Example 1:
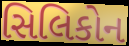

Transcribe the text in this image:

સિલિકોન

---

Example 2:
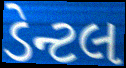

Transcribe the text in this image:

ડેન્ટલ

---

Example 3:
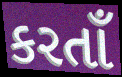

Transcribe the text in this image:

કરતાઁ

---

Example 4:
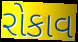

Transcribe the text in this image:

રોકાવ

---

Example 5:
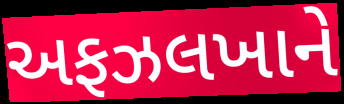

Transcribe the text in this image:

અફઝલખાને